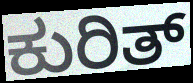
ಕುರಿತ್